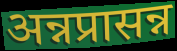
अन्नप्रासन्न